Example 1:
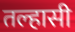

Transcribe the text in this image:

तल्हासी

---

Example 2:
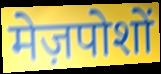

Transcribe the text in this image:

मेज़पोशों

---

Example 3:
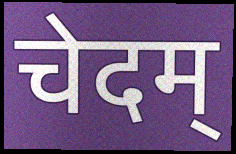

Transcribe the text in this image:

चेदम्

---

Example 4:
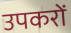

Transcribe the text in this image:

उपकरों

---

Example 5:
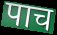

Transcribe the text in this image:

पाच